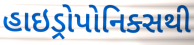
હાઇડ્રોપોનિક્સથી